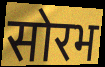
सोरभ